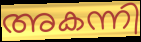
അകന്നി